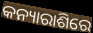
କନ୍ୟାରାଶିରେ